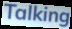
Talking